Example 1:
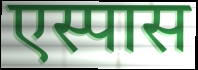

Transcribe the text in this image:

एस्पास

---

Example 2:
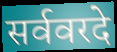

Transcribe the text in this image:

सर्ववरदे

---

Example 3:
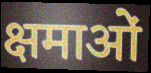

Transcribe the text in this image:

क्षमाओं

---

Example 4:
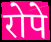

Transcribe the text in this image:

रोपे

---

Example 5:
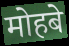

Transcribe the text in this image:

मोहबे